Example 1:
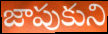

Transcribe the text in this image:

జాపుకుని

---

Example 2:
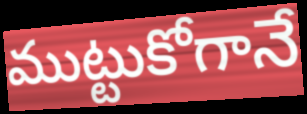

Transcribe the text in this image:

ముట్టుకోగానే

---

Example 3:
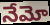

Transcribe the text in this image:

నేమో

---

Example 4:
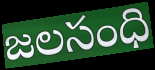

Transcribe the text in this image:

జలసంధి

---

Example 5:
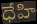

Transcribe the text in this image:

ధేహి